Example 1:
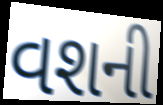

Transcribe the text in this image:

વશની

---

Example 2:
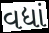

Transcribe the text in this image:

વદ્યાં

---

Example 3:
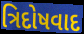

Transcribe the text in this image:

ત્રિદોષવાદ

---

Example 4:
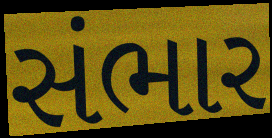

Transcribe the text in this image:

સંભાર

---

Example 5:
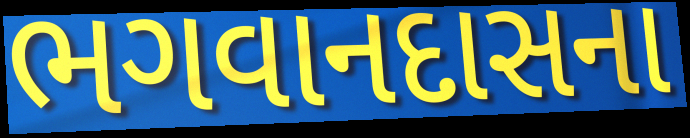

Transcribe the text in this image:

ભગવાનદાસના